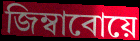
জিম্বাবোয়ে